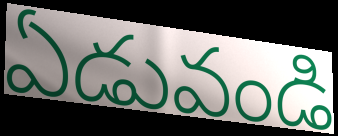
ఏడువండి